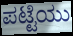
ಪಟ್ಟೆಯು